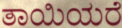
ತಾಯಿಯರೆ